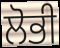
ਲੋਭੀ